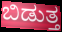
ಬಿಡುತ್ತ